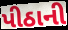
પીઠાની